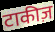
टाकीज़